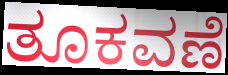
ತೂಕವಣೆ